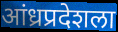
आंध्रप्रदेशला